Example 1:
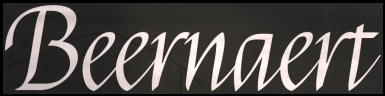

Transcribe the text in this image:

Beernaert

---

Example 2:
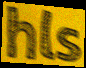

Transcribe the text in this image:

hls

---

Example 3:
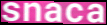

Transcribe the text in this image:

snaca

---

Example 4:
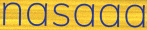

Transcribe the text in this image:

nasaaa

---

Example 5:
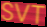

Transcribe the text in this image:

SVT